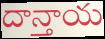
దాన్తాయ